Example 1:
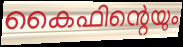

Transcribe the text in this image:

കൈഫിന്റെയും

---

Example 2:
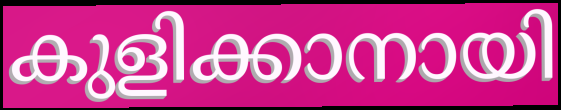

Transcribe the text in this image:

കുളിക്കാനായി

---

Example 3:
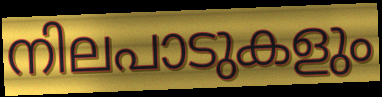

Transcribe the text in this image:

നിലപാടുകളും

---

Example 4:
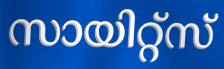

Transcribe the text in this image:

സായിറ്റ്സ്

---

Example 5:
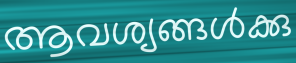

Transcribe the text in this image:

ആവശ്യങ്ങൾക്കു